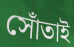
সোঁতাই